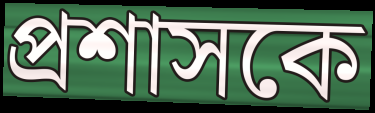
প্ৰশাসকে